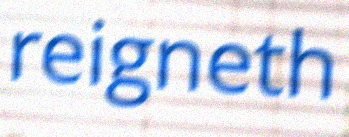
reigneth